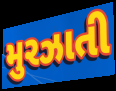
મુરઝાતી